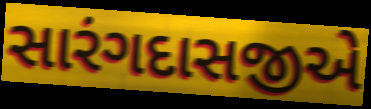
સારંગદાસજીએ